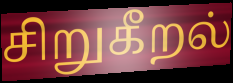
சிறுகீறல்